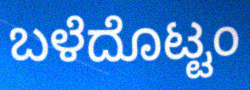
ಬಳೆದೊಟ್ಟಂ